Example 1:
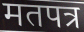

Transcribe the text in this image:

मतपत्र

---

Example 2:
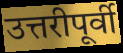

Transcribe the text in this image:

उत्तरीपूर्वी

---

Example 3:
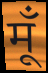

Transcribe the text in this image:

मूँ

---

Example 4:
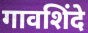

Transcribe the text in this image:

गावशिंदे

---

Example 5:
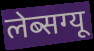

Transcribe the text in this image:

लेब्सग्यू